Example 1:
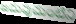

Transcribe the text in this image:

జదువుచుంటిని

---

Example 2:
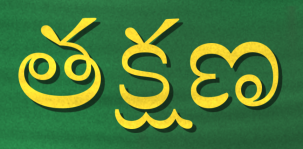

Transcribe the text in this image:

తక్షణ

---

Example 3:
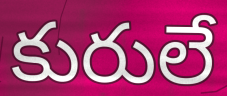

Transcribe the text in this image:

కురులే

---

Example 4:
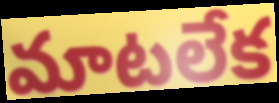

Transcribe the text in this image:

మాటలేక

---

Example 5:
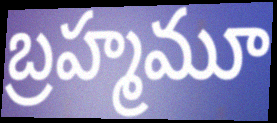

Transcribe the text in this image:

బ్రహ్మమూ